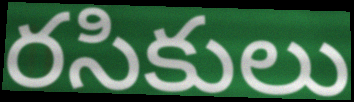
రసికులు